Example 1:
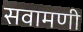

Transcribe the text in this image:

सवामणी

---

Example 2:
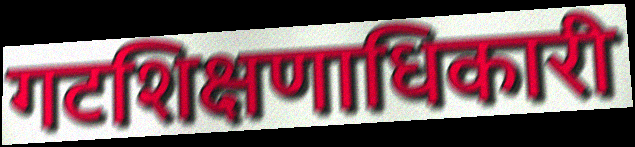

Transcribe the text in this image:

गटशिक्षणाधिकारी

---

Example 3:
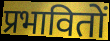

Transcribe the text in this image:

प्रभावितों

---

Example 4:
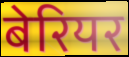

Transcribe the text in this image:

बेरियर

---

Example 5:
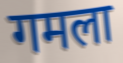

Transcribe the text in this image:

गमला